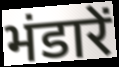
भंडारें